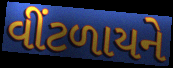
વીંટળાયને